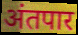
अंतपार